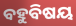
ବହୁବିଷୟ